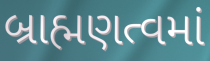
બ્રાહ્મણત્વમાં